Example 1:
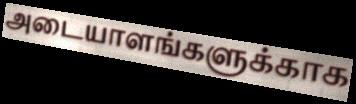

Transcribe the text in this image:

அடையாளங்களுக்காக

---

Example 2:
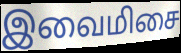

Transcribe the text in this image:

இவைமிசை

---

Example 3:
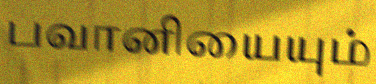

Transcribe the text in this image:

பவானியையும்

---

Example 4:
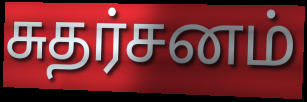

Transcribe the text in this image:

சுதர்சனம்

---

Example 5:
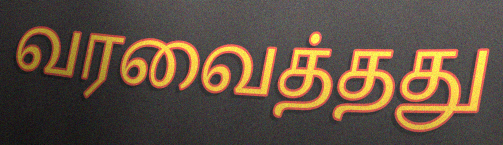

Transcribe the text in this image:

வரவைத்தது